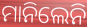
ମାନିଲେନି